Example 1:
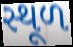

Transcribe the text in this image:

સ્થૂળ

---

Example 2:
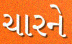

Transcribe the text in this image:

ચારને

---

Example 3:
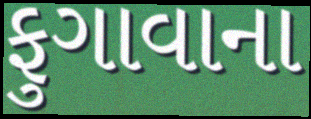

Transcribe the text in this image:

ફુગાવાના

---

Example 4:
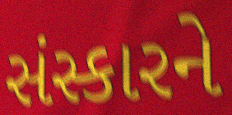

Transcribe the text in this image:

સંસ્કારને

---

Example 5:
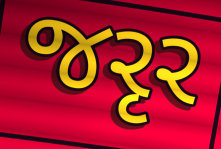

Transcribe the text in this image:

જરૃર